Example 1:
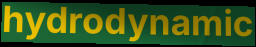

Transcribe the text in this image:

hydrodynamic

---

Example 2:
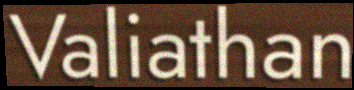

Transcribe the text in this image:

Valiathan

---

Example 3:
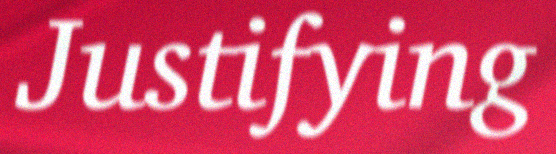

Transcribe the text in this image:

Justifying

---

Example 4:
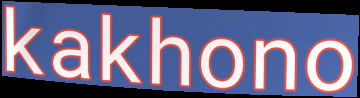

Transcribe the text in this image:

kakhono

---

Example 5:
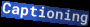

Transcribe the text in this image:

Captioning